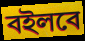
বইলবে